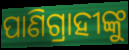
ପାଣିଗ୍ରାହୀଙ୍କୁ